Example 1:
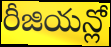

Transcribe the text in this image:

రీజియన్లో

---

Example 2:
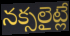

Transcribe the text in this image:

నక్సలైట్లే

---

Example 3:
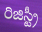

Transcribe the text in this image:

రిజిస్ట్రీ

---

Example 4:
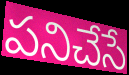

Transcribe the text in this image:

పనిచేసే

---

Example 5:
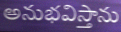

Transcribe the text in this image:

అనుభవిస్తాను